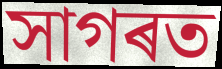
সাগৰত